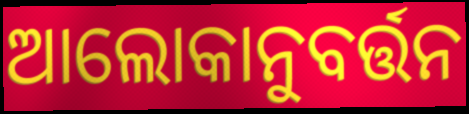
ଆଲୋକାନୁବର୍ତ୍ତନ